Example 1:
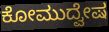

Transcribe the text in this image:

ಕೋಮುದ್ವೇಷ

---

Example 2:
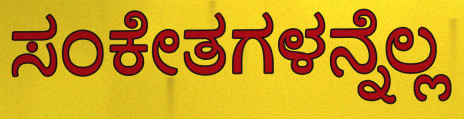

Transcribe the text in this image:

ಸಂಕೇತಗಳನ್ನೆಲ್ಲ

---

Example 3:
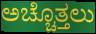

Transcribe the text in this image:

ಅಚ್ಚೊತ್ತಲು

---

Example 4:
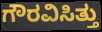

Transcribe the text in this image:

ಗೌರವಿಸಿತ್ತು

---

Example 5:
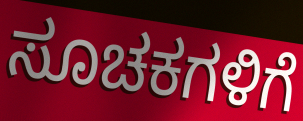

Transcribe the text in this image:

ಸೂಚಕಗಳಿಗೆ